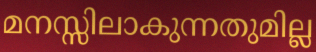
മനസ്സിലാകുന്നതുമില്ല